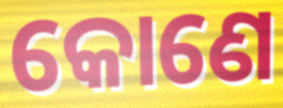
କୋଣେ